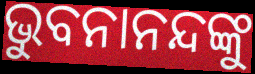
ଭୁବନାନନ୍ଦଙ୍କୁ